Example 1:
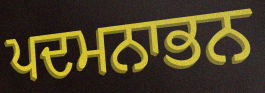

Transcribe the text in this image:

ਪਦਮਨਾਭਨ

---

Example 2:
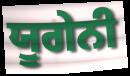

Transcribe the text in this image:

ਯੂਗੇਨੀ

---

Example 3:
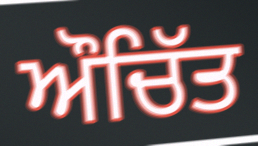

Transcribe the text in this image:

ਔਚਿੱਤ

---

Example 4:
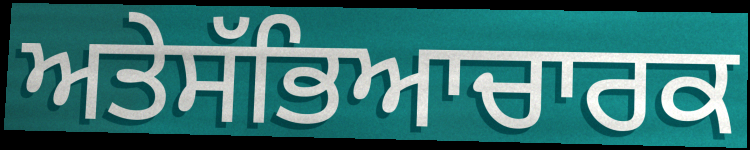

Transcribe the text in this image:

ਅਤੇਸੱਭਿਆਚਾਰਕ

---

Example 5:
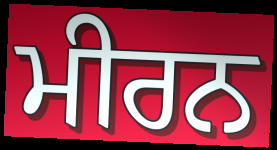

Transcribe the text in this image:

ਮੀਰਨ